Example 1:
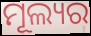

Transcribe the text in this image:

ମୂଲ୍ୟର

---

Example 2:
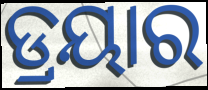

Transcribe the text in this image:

ଡ୍ରୟାର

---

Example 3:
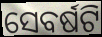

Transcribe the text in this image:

ସେବର୍ଷଟି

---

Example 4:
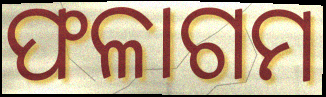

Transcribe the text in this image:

ଫଳାଗମ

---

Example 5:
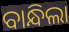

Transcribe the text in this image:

ବାନ୍ଧିଲା